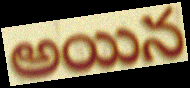
అయిన